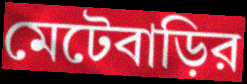
মেটেবাড়ির